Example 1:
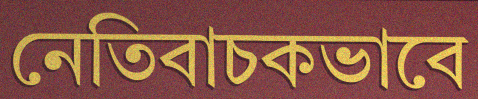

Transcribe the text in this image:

নেতিবাচকভাবে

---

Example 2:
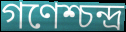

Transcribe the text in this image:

গণেশ্চন্দ্র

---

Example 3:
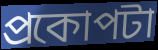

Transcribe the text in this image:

প্রকোপটা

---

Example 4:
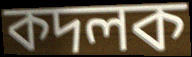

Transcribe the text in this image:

কদলক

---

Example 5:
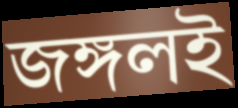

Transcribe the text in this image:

জঙ্গলই